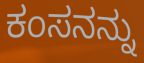
ಕಂಸನನ್ನು